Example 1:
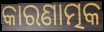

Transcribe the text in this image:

କାରଣାତ୍ମକ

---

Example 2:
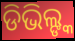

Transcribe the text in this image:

ଡିଭିଲ୍ଙ୍କ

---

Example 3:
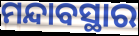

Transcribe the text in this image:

ମନ୍ଦାବସ୍ଥାର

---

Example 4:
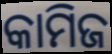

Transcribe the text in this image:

କାମିଜ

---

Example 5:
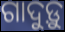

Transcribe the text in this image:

ଗାଦୁଡ଼ୁ